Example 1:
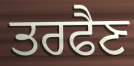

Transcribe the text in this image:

ਤਰਫੈਣ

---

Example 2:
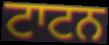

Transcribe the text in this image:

ਟਾਟਨ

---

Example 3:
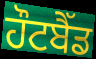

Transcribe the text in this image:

ਹੌਟਬੈੱਡ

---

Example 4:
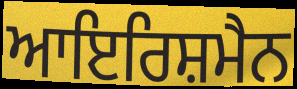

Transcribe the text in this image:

ਆਇਰਿਸ਼ਮੈਨ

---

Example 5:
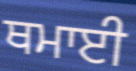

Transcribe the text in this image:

ਥਮਾਈ